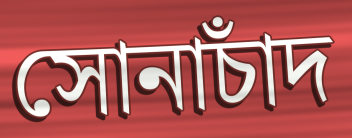
সোনাচাঁদ